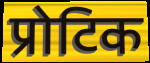
प्रोटिक